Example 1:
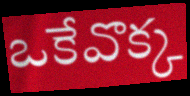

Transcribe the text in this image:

ఒకేవొక్క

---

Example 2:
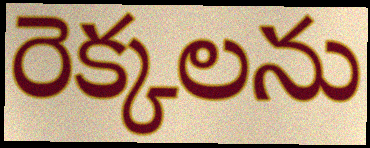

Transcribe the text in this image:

రెక్కలను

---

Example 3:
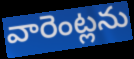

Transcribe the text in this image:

వారెంట్లను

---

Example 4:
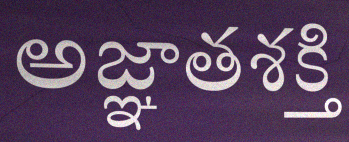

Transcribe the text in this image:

అజ్ఞాతశక్తి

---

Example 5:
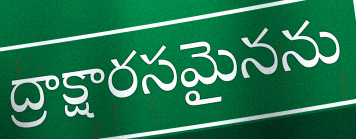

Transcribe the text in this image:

ద్రాక్షారసమైనను